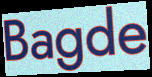
Bagde